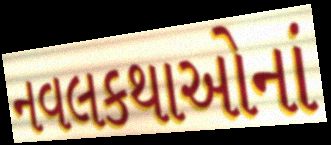
નવલકથાઓનાં